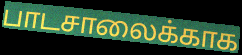
பாடசாலைக்காக